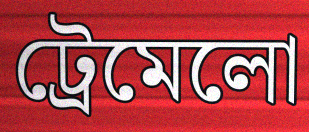
ট্রেমেলো